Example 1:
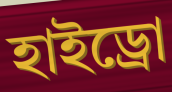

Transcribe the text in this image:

হাইড্রো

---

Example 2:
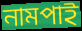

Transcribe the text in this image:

নামপাই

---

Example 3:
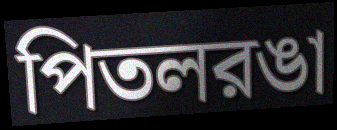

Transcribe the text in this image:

পিতলরঙা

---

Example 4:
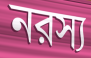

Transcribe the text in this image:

নরস্য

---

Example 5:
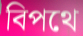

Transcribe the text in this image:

বিপথে